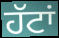
ਹੱਟਾਂ